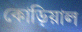
কোড়িয়াল